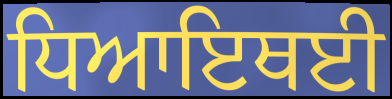
ਧਿਆਇਥਈ